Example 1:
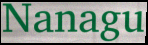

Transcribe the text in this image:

Nanagu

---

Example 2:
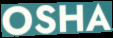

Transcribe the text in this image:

OSHA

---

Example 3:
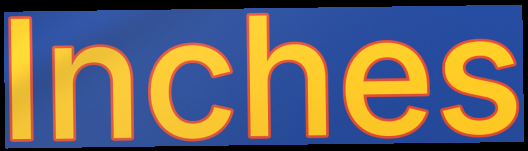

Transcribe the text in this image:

Inches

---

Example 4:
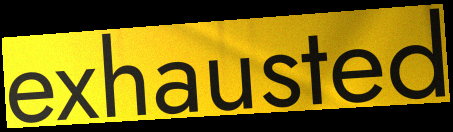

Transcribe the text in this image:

exhausted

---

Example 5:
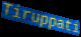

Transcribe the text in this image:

Tiruppati